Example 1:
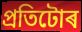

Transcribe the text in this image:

প্ৰতিটোৰ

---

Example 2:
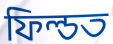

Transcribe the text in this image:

ফিল্ডত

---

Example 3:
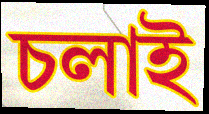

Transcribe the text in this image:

চলাই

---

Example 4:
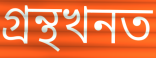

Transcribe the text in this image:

গ্ৰন্থখনত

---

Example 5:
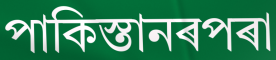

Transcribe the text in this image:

পাকিস্তানৰপৰা